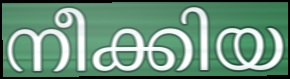
നീക്കിയ